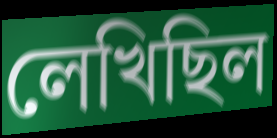
লেখিছিল